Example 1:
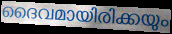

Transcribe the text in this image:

ദൈവമായിരിക്കയും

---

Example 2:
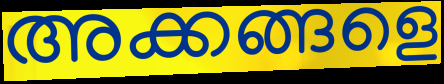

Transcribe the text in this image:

അക്കങ്ങളെ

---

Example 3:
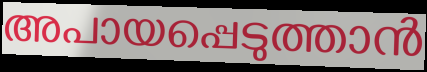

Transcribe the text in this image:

അപായപ്പെടുത്താൻ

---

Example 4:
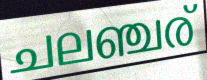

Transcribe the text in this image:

ചലഞ്ചര്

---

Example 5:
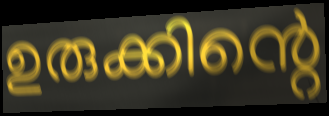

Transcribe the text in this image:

ഉരുക്കിന്റെ